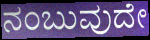
ನಂಬುವುದೇ